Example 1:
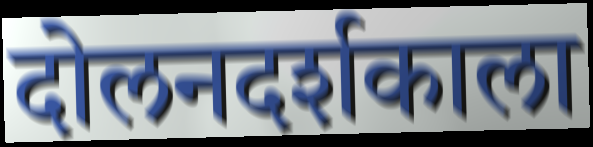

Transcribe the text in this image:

दोलनदर्शकाला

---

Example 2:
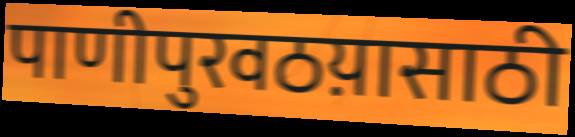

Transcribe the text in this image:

पाणीपुरवठय़ासाठी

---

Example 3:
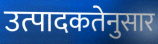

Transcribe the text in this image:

उत्पादकतेनुसार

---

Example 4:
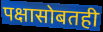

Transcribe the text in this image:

पक्षासोबतही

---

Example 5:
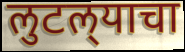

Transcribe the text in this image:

लुटल्याचा